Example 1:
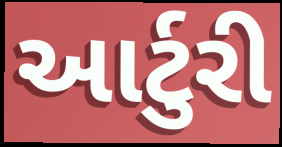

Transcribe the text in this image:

આર્ટુરી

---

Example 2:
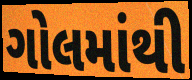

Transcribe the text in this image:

ગોલમાંથી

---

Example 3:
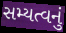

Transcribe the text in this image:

સમ્યત્વનું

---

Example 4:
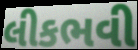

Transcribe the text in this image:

લીકભવી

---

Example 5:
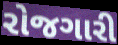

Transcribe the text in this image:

રોજગારી